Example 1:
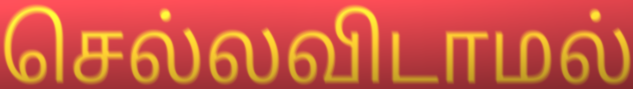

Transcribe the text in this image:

செல்லவிடாமல்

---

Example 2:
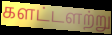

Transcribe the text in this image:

களட்டளற்று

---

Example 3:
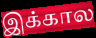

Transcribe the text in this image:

இக்கால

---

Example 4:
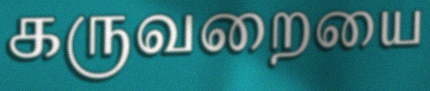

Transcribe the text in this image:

கருவறையை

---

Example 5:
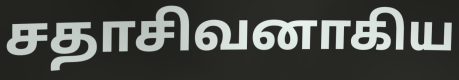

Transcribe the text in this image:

சதாசிவனாகிய